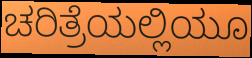
ಚರಿತ್ರೆಯಲ್ಲಿಯೂ